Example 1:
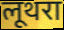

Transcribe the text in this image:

लूथरा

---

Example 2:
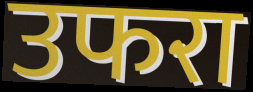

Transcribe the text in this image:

उफरा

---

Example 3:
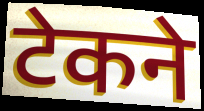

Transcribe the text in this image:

टेकने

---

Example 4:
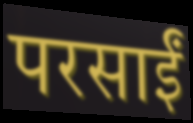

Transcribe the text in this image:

परसाईं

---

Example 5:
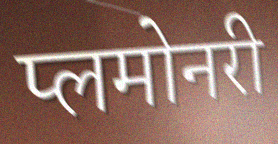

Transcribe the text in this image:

प्लमोनरी